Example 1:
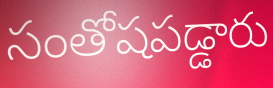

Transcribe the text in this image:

సంతోషపడ్డారు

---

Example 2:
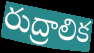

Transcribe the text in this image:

రుద్రాలిక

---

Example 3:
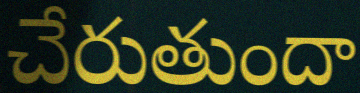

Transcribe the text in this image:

చేరుతుందా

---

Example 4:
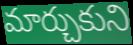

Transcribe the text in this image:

మార్చుకుని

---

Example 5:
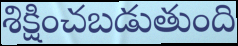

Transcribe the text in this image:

శిక్షించబడుతుంది